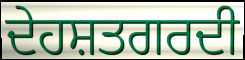
ਦੇਹਸ਼ਤਗਰਦੀ